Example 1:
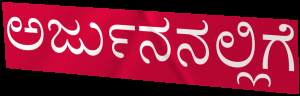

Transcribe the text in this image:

ಅರ್ಜುನನಲ್ಲಿಗೆ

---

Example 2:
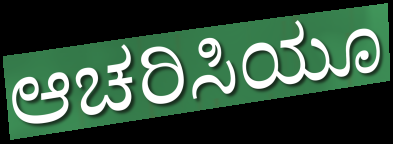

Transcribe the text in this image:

ಆಚರಿಸಿಯೂ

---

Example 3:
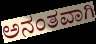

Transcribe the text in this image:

ಅನಂತವಾಗಿ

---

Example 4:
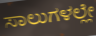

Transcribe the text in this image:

ಸಾಲುಗಳಲ್ಲೇ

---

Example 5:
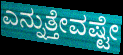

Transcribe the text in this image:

ಎನ್ನುತ್ತೇವಷ್ಟೇ